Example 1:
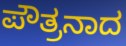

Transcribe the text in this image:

ಪೌತ್ರನಾದ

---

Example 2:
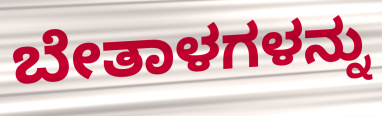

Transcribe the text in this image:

ಬೇತಾಳಗಳನ್ನು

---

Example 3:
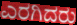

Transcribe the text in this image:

ಎರಗಿದರು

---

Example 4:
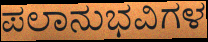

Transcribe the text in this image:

ಪಲಾನುಭವಿಗಳ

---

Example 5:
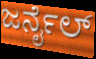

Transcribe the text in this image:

ಜರ್ನೈಲ್